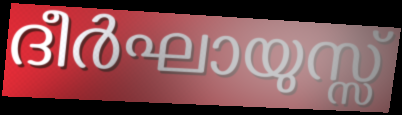
ദീർഘായുസ്സ്